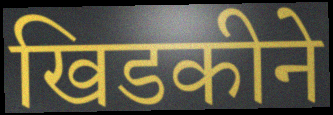
खिडकीने